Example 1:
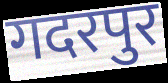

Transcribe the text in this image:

गदरपुर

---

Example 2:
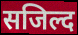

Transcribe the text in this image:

सजिल्द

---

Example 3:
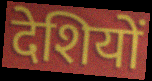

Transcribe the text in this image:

देशियों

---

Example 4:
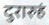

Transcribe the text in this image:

दुरारुहं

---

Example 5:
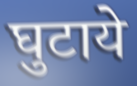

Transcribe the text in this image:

घुटाये